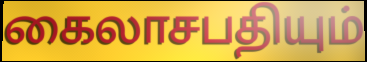
கைலாசபதியும்